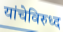
यांचेविरुध्द